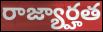
రాజ్యార్హత